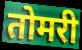
तोमरी